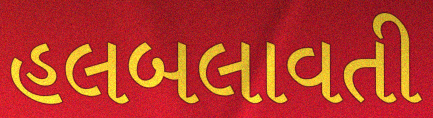
હલબલાવતી